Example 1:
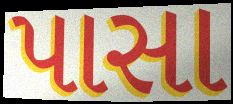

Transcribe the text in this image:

પાસા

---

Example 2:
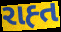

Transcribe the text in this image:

રાહ્ત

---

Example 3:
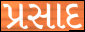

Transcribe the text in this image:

પ્રસાદ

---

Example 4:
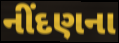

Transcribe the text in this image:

નીંદણના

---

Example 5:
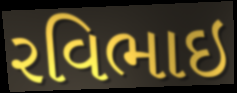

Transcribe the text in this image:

રવિભાઇ